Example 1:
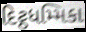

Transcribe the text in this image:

દિટ્ઠધમ્મિકા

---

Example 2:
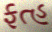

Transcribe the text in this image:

ફત્હ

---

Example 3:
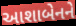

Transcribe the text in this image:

આશાબેનને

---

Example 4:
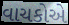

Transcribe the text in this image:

વાચકોએ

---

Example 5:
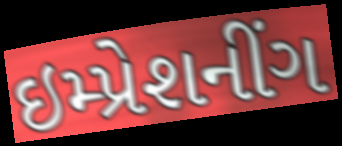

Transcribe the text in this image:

ઇમ્પ્રેશનીંગ